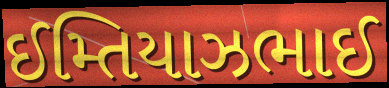
ઈમ્તિયાઝભાઈ